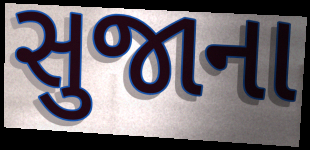
સુજાના